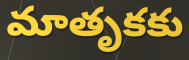
మాతృకకు